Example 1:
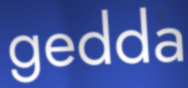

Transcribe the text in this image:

gedda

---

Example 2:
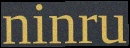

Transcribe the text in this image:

ninru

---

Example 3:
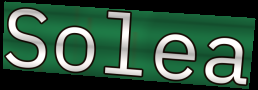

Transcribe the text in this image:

Solea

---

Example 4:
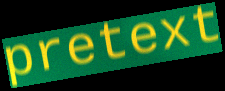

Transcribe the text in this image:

pretext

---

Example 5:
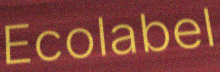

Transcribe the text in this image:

Ecolabel